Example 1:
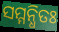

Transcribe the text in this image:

ସମ୍ମନ୍ଧିତଃ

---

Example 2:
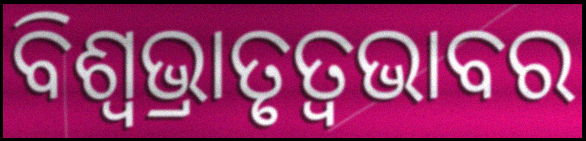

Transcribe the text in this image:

ବିଶ୍ଵଭ୍ରାତୃତ୍ୱଭାବର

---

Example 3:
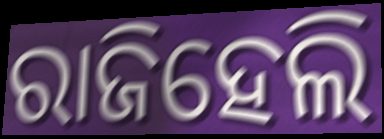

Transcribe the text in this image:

ରାଜିହେଲି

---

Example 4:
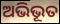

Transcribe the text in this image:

ଅଭିଭୂତ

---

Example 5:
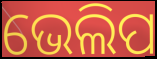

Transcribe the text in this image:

ଭେଲିପ